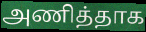
அணித்தாக